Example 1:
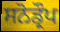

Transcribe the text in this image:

ਸਨੋਡ੍ਰੌਪ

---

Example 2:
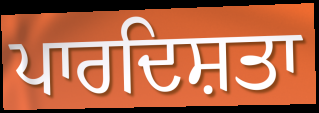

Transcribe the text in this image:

ਪਾਰਦਿਸ਼ਤਾ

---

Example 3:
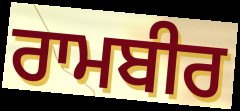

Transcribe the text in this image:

ਰਾਮਬੀਰ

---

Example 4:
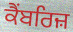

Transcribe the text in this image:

ਕੈਂਬਰਿਜ਼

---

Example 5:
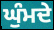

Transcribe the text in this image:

ਘੁੰਮਦੇ